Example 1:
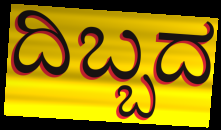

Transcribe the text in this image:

ದಿಬ್ಬದ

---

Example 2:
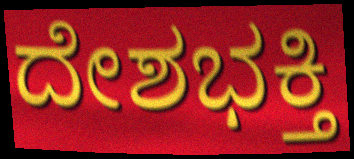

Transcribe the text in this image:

ದೇಶಭಕ್ತಿ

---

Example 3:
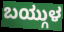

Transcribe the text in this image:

ಬಯ್ಗುಳ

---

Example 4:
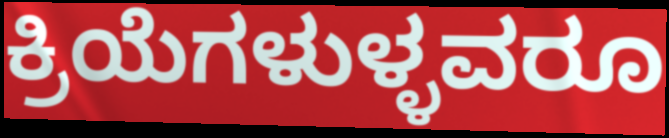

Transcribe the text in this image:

ಕ್ರಿಯೆಗಳುಳ್ಳವರೂ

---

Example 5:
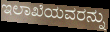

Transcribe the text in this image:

ಇಲಾಖೆಯವರನ್ನು